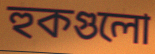
হুকগুলো